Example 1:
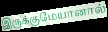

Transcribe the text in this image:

இருக்குமேயானால்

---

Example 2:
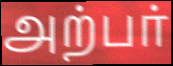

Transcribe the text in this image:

அற்பர்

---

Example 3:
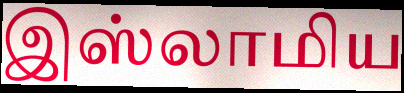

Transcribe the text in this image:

இஸ்லாமிய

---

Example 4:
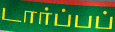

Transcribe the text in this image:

டார்ப்பப்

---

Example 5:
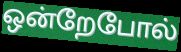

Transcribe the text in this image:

ஒன்றேபோல்